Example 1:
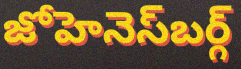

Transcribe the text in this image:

జోహెనెస్‍బర్గ్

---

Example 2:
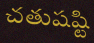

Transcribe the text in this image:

చతుషష్టి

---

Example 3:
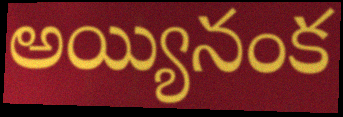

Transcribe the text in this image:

అయ్యినంక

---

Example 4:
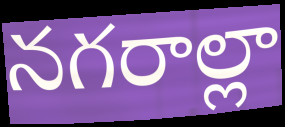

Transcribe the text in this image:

నగరాల్లా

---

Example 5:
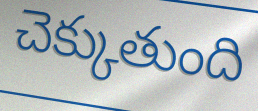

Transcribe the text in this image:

చెక్కుతుంది